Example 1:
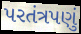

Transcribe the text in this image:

પરતંત્રપણું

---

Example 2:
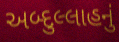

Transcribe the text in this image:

અબ્દુલ્લાહનું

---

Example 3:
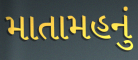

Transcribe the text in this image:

માતામહનું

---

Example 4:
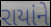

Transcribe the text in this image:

રાયાંને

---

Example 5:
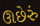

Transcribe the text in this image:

ઊછેરું